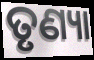
ତୃଣ୍ୟା